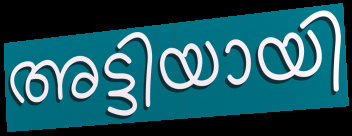
അട്ടിയായി